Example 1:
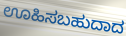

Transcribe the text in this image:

ಊಹಿಸಬಹುದಾದ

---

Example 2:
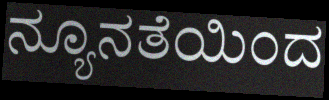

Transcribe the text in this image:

ನ್ಯೂನತೆಯಿಂದ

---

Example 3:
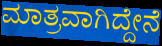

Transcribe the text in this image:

ಮಾತ್ರವಾಗಿದ್ದೇನೆ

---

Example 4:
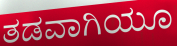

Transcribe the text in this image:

ತಡವಾಗಿಯೂ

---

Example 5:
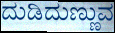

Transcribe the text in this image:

ದುಡಿದುಣ್ಣುವ